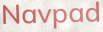
Navpad